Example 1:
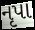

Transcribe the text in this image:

નૃપા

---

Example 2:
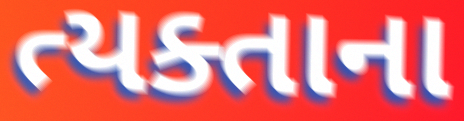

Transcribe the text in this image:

ત્યક્તાના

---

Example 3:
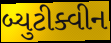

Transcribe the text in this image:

બ્યુટીક્વીન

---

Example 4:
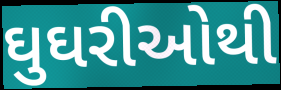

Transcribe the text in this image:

ઘુઘરીઓથી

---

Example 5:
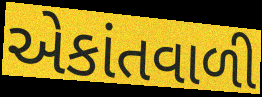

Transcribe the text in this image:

એકાંતવાળી